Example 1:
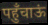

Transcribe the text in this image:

पहुँचाऊं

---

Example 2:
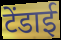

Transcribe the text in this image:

टेंडाई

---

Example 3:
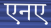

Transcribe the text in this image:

एनए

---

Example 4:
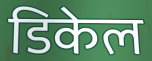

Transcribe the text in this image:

डिकेल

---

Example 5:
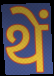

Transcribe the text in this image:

थें